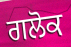
ਗਲੋਕ